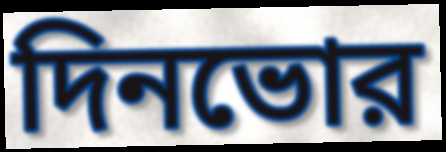
দিনভোর